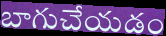
బాగుచేయడం